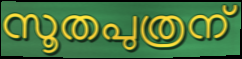
സൂതപുത്രന്